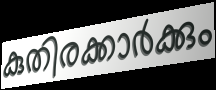
കുതിരക്കാർക്കും